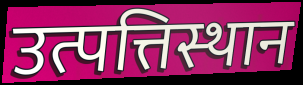
उत्पत्तिस्थान